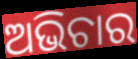
ଅଭିଚାର